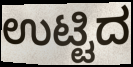
ಉಟ್ಟಿದ